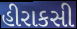
હીરાકસી